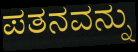
ಪತನವನ್ನು